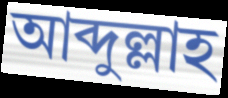
আব্দুল্লাহ